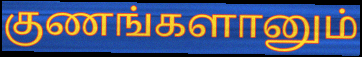
குணங்களானும்